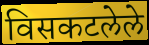
विसकटलेले